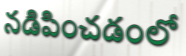
నడిపించడంలో